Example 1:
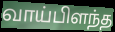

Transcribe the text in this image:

வாய்பிளந்த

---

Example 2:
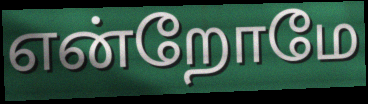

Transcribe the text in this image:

என்றோமே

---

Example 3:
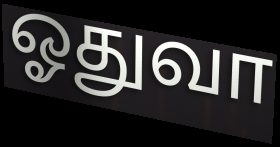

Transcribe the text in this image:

ஓதுவா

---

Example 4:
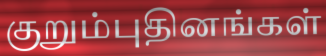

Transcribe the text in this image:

குறும்புதினங்கள்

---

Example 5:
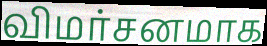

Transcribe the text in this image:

விமர்சனமாக